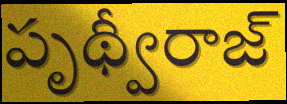
పృథ్వీరాజ్